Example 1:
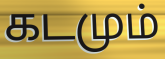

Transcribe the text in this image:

கடமும்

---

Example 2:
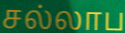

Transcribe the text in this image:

சல்லாப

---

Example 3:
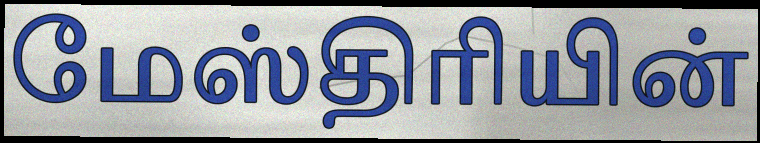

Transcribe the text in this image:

மேஸ்திரியின்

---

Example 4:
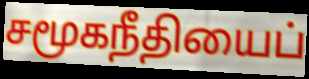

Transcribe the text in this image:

சமூகநீதியைப்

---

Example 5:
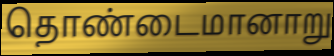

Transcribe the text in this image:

தொண்டைமானாறு